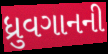
ધ્રુવગાનની